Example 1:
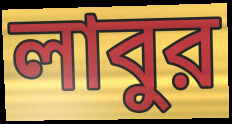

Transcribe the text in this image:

লাবুর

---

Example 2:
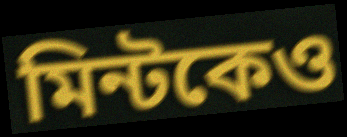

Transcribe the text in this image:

মিন্টকেও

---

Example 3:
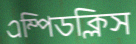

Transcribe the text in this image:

এম্পিডক্লিস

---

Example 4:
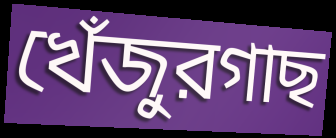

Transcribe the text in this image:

খেঁজুরগাছ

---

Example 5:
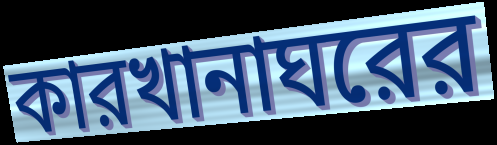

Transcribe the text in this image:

কারখানাঘরের